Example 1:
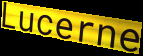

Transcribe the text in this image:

Lucerne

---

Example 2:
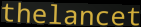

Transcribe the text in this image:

thelancet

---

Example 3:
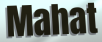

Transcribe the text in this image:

Mahat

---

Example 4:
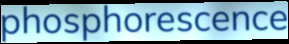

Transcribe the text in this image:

phosphorescence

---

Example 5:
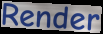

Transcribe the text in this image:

Render